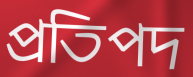
প্ৰতিপদ